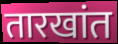
तारखांत